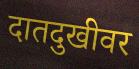
दातदुखीवर